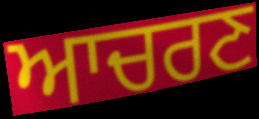
ਆਚਰਣ